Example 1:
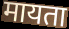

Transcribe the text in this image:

मायता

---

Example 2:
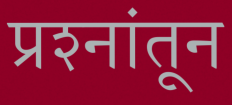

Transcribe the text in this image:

प्रश्नांतून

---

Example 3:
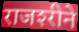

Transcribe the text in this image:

राजश्रीने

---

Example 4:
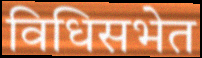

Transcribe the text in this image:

विधिसभेत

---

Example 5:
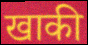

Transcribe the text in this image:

खाकी